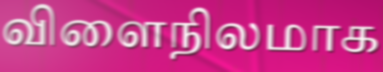
விளைநிலமாக